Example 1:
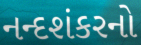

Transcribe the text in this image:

નન્દશંકરનો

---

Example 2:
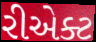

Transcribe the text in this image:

રીએક્ટ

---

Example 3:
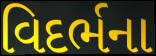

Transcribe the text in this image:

વિદર્ભના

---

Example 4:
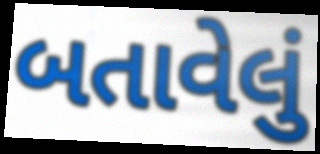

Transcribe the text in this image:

બતાવેલું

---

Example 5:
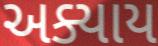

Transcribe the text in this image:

અક્યાય